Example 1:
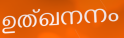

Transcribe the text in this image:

ഉത്ഖനനം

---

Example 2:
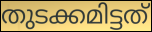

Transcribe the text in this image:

തുടക്കമിട്ടത്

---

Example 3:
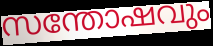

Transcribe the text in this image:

സന്തോഷവും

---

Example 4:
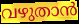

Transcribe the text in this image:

വഴുതാൻ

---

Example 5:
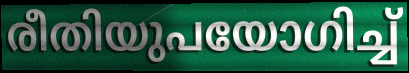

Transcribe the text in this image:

രീതിയുപയോഗിച്ച്